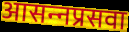
आसन्नप्रसवा